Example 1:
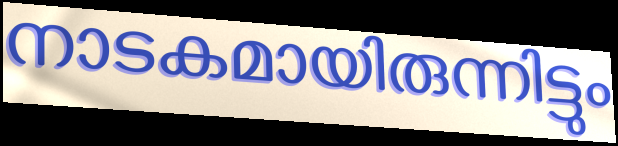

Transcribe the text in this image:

നാടകമായിരുന്നിട്ടും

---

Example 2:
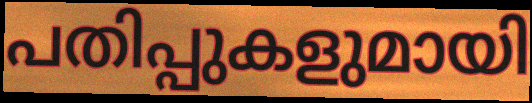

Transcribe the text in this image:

പതിപ്പുകളുമായി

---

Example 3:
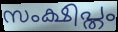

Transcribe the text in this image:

സംക്ഷിപ്തം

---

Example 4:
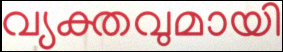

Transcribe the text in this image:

വ്യക്തവുമായി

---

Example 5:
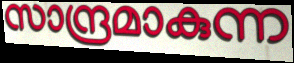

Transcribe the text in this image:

സാന്ദ്രമാകുന്ന